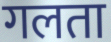
गलता